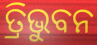
ତ୍ରିଭୁବନ